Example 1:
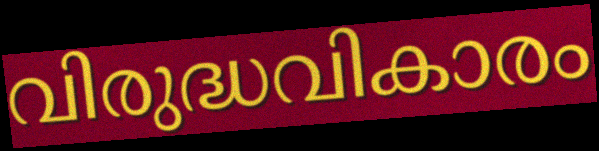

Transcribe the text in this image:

വിരുദ്ധവികാരം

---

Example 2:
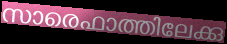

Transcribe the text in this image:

സാരെഫാത്തിലേക്കു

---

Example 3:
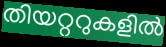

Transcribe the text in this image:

തിയറ്ററുകളിൽ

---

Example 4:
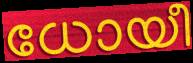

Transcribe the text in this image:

ധോയീ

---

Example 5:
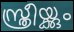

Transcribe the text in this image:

സ്ത്രീയ്ക്കും